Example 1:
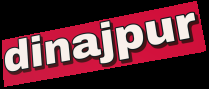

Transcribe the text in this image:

dinajpur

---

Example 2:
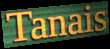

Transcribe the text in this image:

Tanais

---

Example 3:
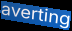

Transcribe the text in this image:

averting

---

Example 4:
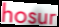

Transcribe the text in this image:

hosur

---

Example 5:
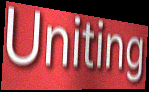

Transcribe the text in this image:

Uniting